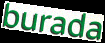
burada